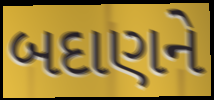
બદાણને